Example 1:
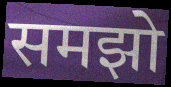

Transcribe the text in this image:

समझो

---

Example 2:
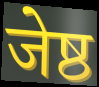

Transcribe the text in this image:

जेष्ठ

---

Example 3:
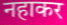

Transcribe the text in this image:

नहाकर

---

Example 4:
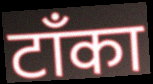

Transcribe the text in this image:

टाँका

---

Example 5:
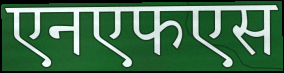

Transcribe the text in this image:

एनएफएस